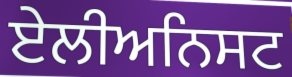
ਏਲੀਅਨਿਸਟ